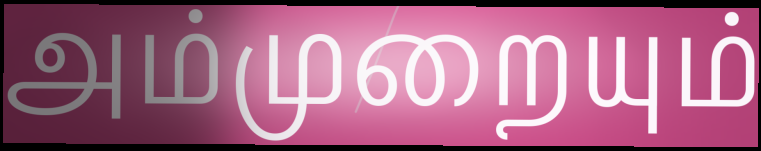
அம்முறையும்